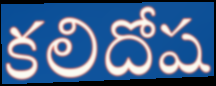
కలిదోష